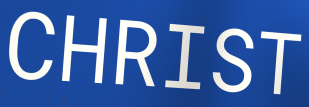
CHRIST